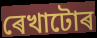
ৰেখাটোৰ